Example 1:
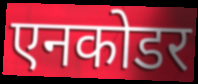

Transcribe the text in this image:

एनकोडर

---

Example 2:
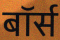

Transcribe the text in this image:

बॉर्स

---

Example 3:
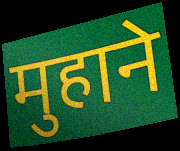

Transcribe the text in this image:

मुहाने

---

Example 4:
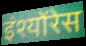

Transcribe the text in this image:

इंश्योंरेस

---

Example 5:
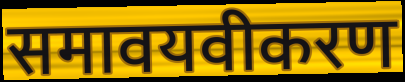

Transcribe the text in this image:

समावयवीकरण